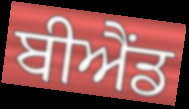
ਬੀਐਂਡ